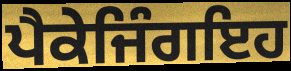
ਪੈਕੇਜਿੰਗਇਹ